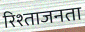
रिश्ताजनता